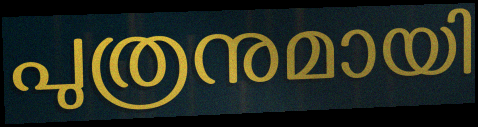
പുത്രനുമായി